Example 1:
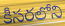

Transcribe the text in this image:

కీసరలోని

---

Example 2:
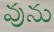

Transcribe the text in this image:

వును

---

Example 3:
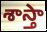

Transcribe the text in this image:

శాస్తా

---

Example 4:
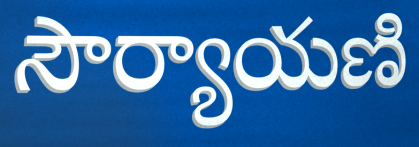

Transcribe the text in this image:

సౌర్యాయణి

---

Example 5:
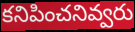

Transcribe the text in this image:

కనిపించనివ్వరు